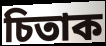
চিতাক